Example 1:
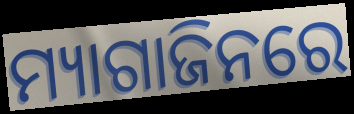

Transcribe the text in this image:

ମ୍ୟାଗାଜିନରେ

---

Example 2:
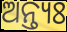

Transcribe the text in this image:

ଅନ୍ତ୍ୟଃ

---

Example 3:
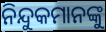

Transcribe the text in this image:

ନିନ୍ଦୁକମାନଙ୍କୁ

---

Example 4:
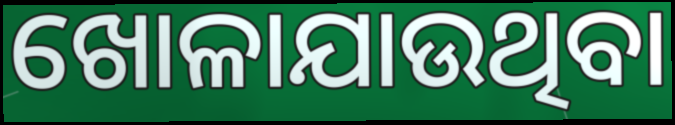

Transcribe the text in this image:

ଖୋଳାଯାଉଥିବା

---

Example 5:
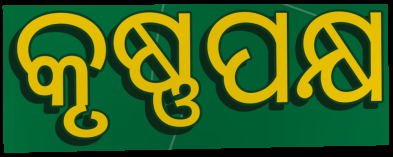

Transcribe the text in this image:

କୃଷ୍ଣପକ୍ଷ